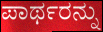
ಪಾರ್ಥರನ್ನು